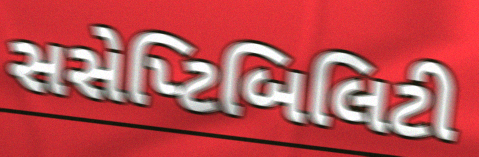
સસેપ્ટિબિલિટી